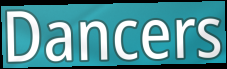
Dancers